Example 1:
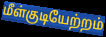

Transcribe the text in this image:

மீள்குடியேற்றம்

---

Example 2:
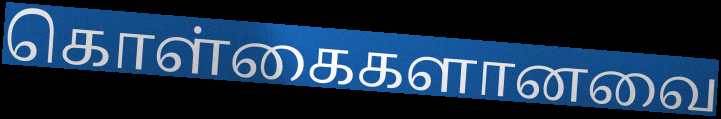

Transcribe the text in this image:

கொள்கைகளானவை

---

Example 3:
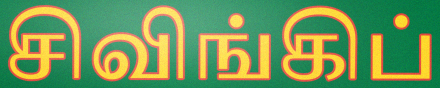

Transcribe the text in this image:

சிவிங்கிப்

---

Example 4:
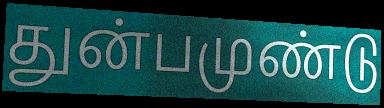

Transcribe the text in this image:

துன்பமுண்டு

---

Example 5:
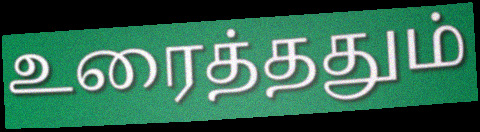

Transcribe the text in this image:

உரைத்ததும்